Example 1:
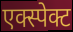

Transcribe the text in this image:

एक्स्पेक्ट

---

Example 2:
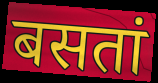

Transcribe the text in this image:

बसतां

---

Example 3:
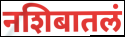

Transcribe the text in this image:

नशिबातलं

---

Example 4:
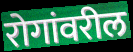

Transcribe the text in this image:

रोगांवरील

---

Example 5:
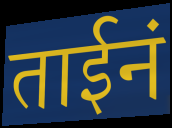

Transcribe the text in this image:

ताईनं